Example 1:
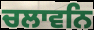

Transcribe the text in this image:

ਚਲਾਵਨਿ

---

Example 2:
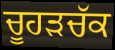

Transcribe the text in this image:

ਚੂਹਡ਼ਚੱਕ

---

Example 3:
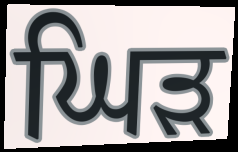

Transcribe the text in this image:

ਘਿੜ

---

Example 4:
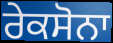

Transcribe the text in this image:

ਰੇਕਸੋਨਾ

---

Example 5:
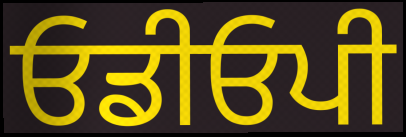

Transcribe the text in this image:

ਓਡੀਓਪੀ